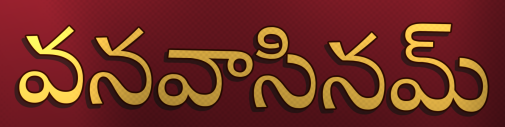
వనవాసినమ్